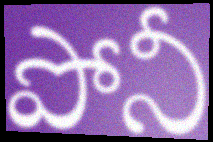
పోనీ